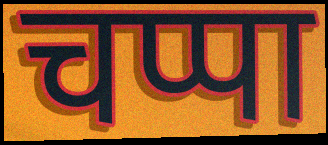
चप्पा